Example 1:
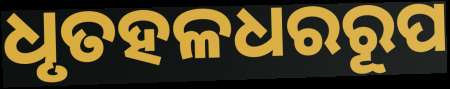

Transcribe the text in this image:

ଧୃତହଳଧରରୂପ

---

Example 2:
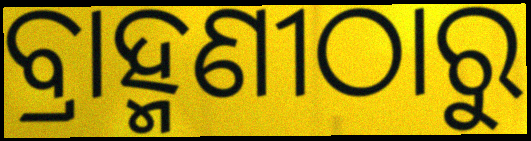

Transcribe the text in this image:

ବ୍ରାହ୍ମଣୀଠାରୁ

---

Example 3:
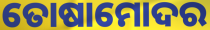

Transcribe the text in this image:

ତୋଷାମୋଦର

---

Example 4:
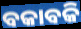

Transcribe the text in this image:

ବକାବକି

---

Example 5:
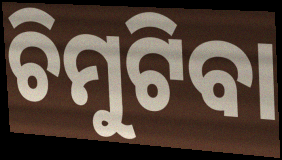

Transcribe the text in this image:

ଚିମୁଟିବା